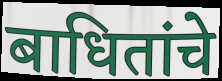
बाधितांचे